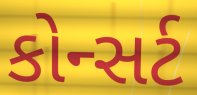
કોન્સર્ટ